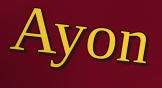
Ayon